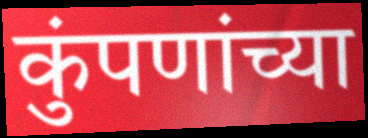
कुंपणांच्या